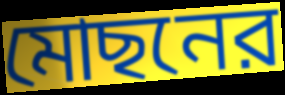
মোছনের